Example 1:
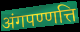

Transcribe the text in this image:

अंगपण्णत्ति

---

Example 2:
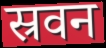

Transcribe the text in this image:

स्रवन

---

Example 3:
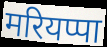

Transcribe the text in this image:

मरियप्पा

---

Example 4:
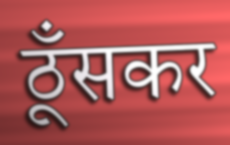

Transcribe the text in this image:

ठूँसकर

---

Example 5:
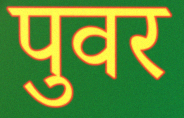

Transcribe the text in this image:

पुवर